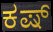
ಕಷ್